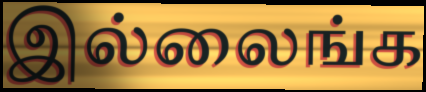
இல்லைங்க